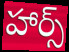
హార్స్